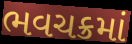
ભવચક્રમાં